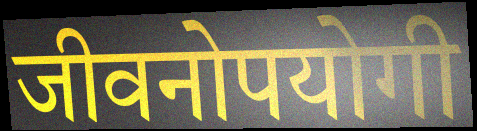
जीवनोपयोगी